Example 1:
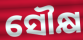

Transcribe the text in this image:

ସୌକ୍ଷ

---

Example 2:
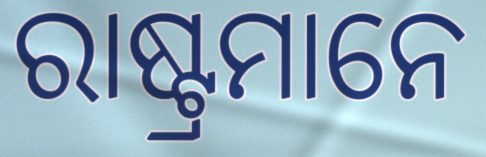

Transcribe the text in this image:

ରାଷ୍ଟ୍ରମାନେ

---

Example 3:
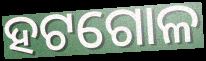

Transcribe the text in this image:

ହଟଗୋଳ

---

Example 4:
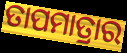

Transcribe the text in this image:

ତାପମାତ୍ରାର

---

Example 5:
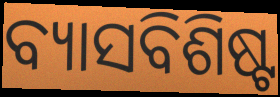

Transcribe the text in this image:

ବ୍ୟାସବିଶିଷ୍ଟ